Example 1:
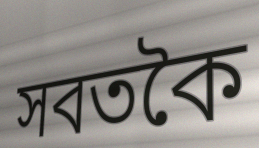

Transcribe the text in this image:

সবতকৈ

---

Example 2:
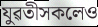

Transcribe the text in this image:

যুৱতীসকলেও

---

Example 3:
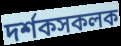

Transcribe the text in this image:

দৰ্শকসকলক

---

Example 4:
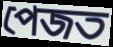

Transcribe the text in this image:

পেজত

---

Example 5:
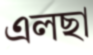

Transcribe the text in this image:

এলছা